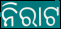
ନିରାଟ